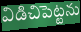
విడిచిపెట్టను